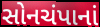
સોનચંપાનાં